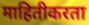
माहितीकरता